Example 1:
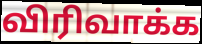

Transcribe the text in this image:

விரிவாக்க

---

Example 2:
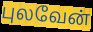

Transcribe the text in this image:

புலவேன்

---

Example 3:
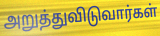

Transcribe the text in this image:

அறுத்துவிடுவார்கள்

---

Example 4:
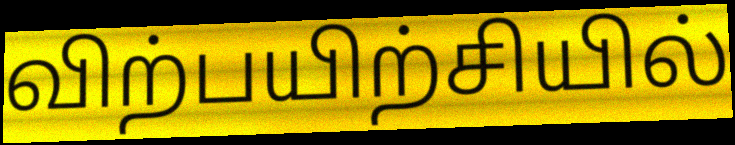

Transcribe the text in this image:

விற்பயிற்சியில்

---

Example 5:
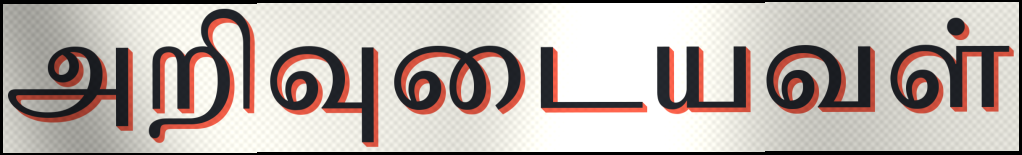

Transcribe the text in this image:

அறிவுடையவள்